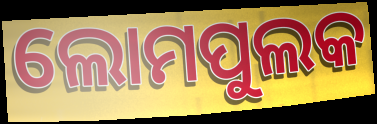
ଲୋମପୁଲକ